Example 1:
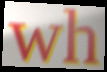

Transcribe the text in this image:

wh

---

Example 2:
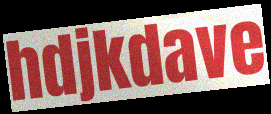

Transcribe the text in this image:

hdjkdave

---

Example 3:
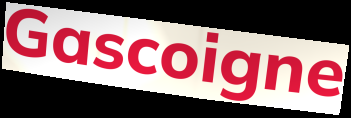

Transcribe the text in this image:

Gascoigne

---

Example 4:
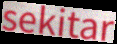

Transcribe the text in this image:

sekitar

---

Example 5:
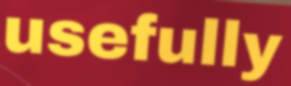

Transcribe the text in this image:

usefully